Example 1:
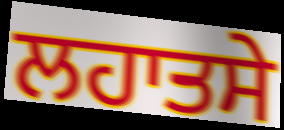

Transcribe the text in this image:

ਲਹਾਤਸੇ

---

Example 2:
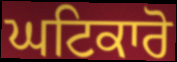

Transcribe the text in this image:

ਘਟਿਕਾਰੋ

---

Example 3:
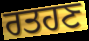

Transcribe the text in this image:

ਰਤਹਣ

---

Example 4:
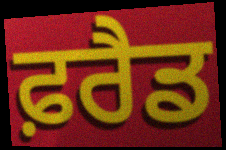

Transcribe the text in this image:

ਫ਼ਰੈਡ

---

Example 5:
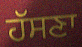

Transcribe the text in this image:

ਹੱਸਣਾ